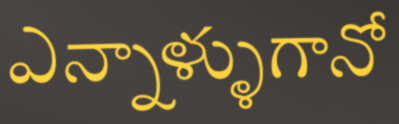
ఎన్నాళ్ళుగానో